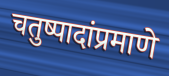
चतुष्पादांप्रमाणे